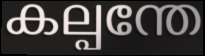
കല്പന്തേ